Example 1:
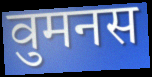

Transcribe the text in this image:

वुमनस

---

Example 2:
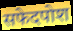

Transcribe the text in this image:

सफेदपोश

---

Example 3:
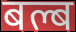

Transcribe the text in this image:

बल्‍ब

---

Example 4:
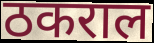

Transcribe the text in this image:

ठकराल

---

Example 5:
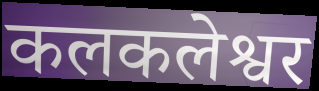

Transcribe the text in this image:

कलकलेश्वर